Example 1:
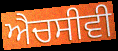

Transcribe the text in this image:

ਐਚਸੀਵੀ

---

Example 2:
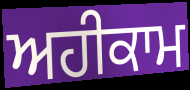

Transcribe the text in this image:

ਅਹੀਕਾਮ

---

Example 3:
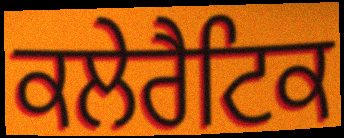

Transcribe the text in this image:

ਕਲੇਰੈਟਿਕ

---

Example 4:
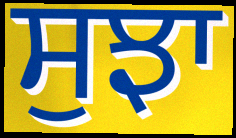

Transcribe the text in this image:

ਸੁਝਾ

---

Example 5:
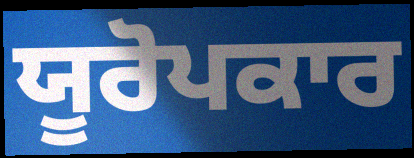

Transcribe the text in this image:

ਯੂਰੋਪਕਾਰ